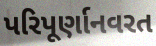
પરિપૂર્ણાનવરત